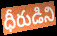
ధీరుడిని